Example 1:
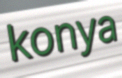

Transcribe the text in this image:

konya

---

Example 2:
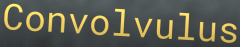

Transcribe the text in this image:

Convolvulus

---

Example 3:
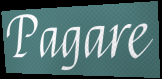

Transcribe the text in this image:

Pagare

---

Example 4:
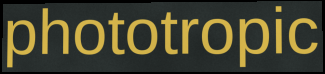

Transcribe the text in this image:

phototropic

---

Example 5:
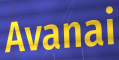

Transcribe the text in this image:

Avanai